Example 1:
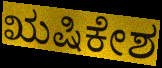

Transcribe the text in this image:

ಋಷಿಕೇಶ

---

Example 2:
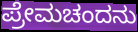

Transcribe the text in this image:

ಪ್ರೇಮಚಂದನು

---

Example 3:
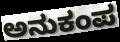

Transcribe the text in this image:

ಅನುಕಂಪ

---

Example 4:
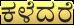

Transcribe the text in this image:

ಕಳೆದರೆ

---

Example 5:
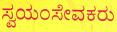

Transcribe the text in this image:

ಸ್ವಯಂಸೇವಕರು